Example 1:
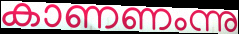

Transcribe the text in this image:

കാണണംന്നു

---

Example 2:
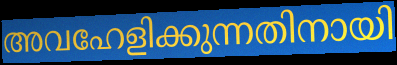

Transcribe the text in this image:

അവഹേളിക്കുന്നതിനായി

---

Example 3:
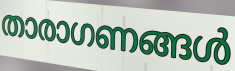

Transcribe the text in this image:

താരാഗണങ്ങൾ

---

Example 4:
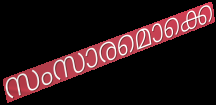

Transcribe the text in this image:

സംസാരമൊക്കെ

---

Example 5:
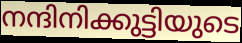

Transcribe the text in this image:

നന്ദിനിക്കുട്ടിയുടെ